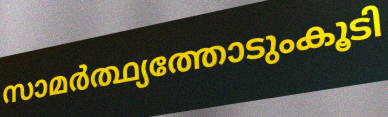
സാമർത്ഥ്യത്തോടുംകൂടി